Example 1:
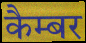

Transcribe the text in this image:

कैम्बर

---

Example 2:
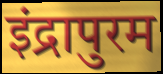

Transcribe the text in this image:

इंद्रापुरम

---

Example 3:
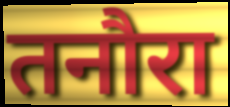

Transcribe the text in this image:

तनौरा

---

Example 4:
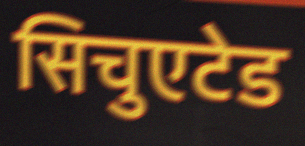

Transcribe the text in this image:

सिचुएटेड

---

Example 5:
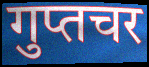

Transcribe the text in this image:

गुप्तचर